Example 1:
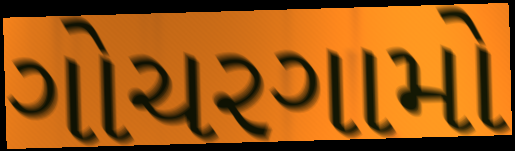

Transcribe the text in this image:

ગોચરગામો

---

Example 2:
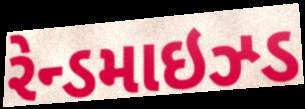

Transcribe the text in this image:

રેન્ડમાઇઝ્ડ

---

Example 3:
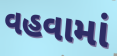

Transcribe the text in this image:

વહવામાં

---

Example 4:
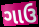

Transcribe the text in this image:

ગાઉ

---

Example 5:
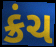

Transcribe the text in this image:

ક્રંચ